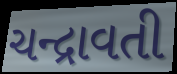
ચન્દ્રાવતી